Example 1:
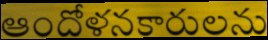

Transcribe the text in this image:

ఆందోళనకారులను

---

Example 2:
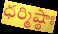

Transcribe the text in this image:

ధర్మిష్ఠాః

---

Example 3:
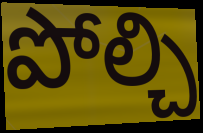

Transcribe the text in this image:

పోల్చి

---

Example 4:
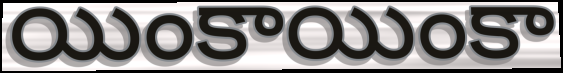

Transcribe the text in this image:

యింకాయింకా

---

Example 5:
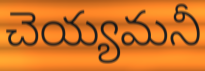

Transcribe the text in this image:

చెయ్యమనీ